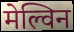
मेल्विन